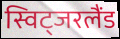
स्विट्जरलैंड